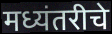
मध्यंतरीचे